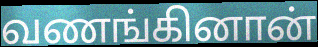
வணங்கினான்